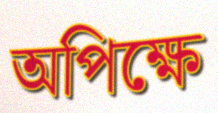
অপিক্ষে